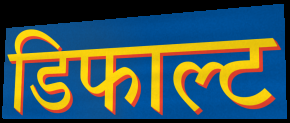
डिफाल्ट